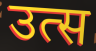
उत्स